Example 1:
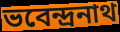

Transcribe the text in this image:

ভবেন্দ্ৰনাথ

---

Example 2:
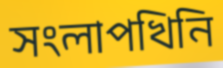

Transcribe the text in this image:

সংলাপখিনি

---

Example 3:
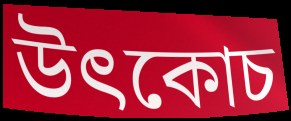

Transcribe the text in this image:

উৎকোচ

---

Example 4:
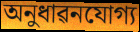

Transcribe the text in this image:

অনুধাৱনযোগ্য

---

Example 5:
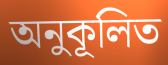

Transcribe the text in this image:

অনুকূলিত